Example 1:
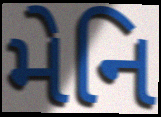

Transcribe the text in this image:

મેનિ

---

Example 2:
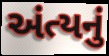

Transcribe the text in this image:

અંત્યનું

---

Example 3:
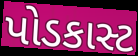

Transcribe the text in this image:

પોડકાસ્ટ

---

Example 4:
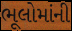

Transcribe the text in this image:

ભૂલોમાંની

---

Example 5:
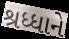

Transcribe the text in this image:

શ્રધ્ધાને